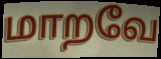
மாறவே